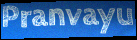
Pranvayu